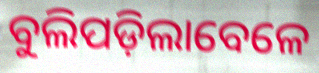
ବୁଲିପଡ଼ିଲାବେଳେ